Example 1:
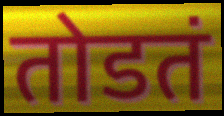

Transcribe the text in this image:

तोडतं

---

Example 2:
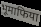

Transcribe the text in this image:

भूमाफिया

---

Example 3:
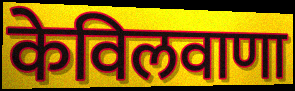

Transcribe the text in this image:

केविलवाणा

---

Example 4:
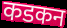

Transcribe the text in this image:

कडकन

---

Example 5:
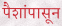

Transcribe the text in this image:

पैशांपासून